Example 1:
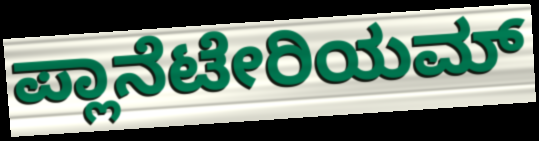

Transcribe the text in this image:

ಪ್ಲಾನೆಟೇರಿಯಮ್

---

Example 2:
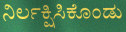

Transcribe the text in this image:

ನಿರ್ಲಕ್ಷಿಸಿಕೊಂಡು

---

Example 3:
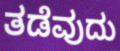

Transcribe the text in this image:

ತಡೆವುದು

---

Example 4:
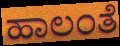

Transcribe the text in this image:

ಹಾಲಂತೆ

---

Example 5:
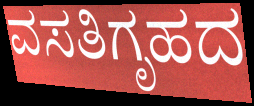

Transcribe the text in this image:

ವಸತಿಗೃಹದ